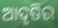
ଆଦୃତିର